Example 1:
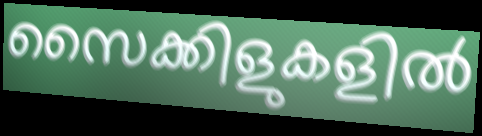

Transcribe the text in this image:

സൈക്കിളുകളിൽ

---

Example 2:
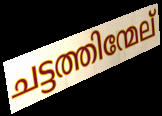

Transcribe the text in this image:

ചട്ടത്തിന്മേല്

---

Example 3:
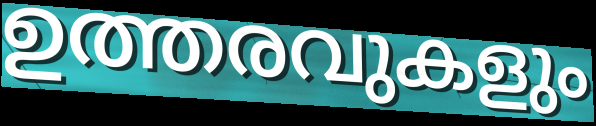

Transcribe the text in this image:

ഉത്തരവുകളും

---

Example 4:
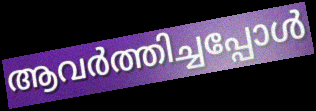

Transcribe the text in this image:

ആവർത്തിച്ചപ്പോൾ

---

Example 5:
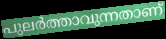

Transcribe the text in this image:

പുലർത്താവുന്നതാണ്